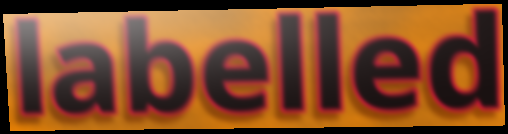
labelled